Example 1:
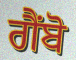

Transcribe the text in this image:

ਗੈਂਬੋ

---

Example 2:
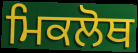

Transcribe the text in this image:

ਮਿਕਲੋਥ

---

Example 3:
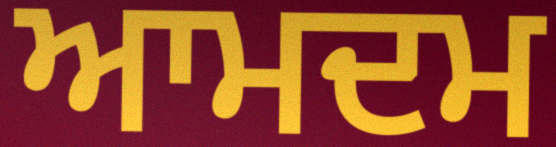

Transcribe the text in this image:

ਆਮਦਮ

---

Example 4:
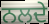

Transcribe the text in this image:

ਨਲਦੇ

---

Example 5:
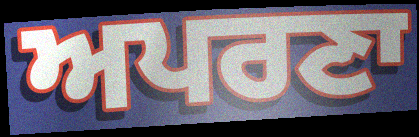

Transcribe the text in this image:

ਅਪਰਣਾ